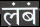
लंबं